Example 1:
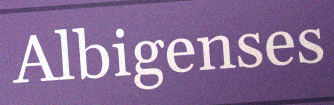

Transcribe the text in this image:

Albigenses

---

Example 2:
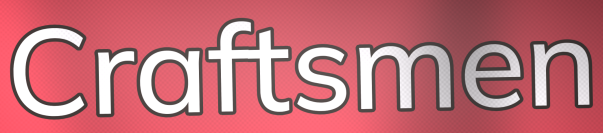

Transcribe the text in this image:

Craftsmen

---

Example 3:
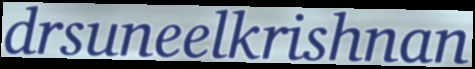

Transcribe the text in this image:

drsuneelkrishnan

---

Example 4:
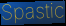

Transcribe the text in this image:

Spastic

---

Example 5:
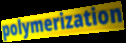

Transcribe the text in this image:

polymerization